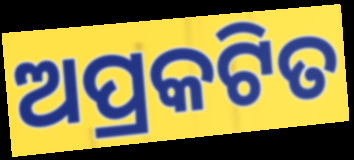
ଅପ୍ରକଟିତ